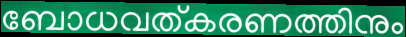
ബോധവത്കരണത്തിനും